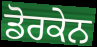
ਡੋਰਕੇਨ